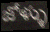
జోళ్ళు